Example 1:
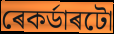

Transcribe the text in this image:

ৰেকৰ্ডাৰটো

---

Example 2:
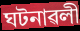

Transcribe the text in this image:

ঘটনাৱলী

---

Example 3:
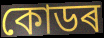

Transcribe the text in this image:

কোডৰ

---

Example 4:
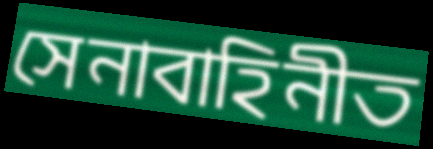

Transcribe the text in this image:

সেনাবাহিনীত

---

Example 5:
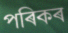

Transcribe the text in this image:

পৰিকৰ